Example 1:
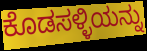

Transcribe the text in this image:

ಕೊಡಸಳ್ಳಿಯನ್ನು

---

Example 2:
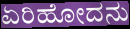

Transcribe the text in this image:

ಏರಿಹೋದನು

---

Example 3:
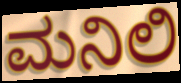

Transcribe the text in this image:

ಮನಿಲಿ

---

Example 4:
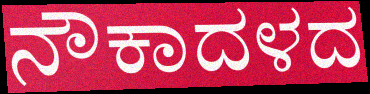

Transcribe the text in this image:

ನೌಕಾದಳದ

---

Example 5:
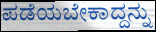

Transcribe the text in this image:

ಪಡೆಯಬೇಕಾದ್ದನ್ನು